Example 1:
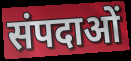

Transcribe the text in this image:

संपदाओं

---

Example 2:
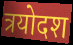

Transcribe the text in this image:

त्रयोदश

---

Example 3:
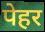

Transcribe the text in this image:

पेहर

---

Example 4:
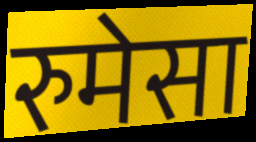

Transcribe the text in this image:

रुमेसा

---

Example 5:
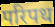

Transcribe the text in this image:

परिपथ